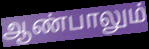
ஆண்பாலும்